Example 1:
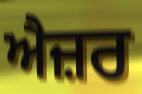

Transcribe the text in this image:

ਐਜ਼ਰ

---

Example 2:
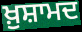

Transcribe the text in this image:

ਖ਼ੁਸ਼ਾਮਦ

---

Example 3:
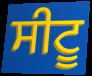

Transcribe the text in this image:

ਸੀਟੂ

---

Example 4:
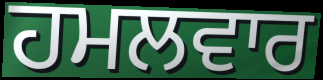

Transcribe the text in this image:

ਹਮਲਵਾਰ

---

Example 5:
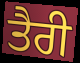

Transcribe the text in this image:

ਤੈਰੀ